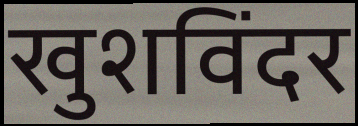
खुशविंदर